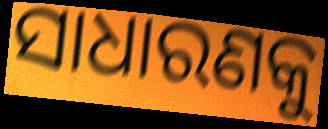
ସାଧାରଣକୁ